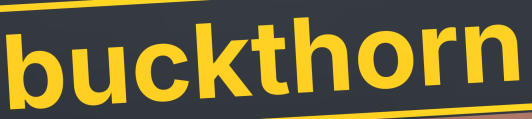
buckthorn